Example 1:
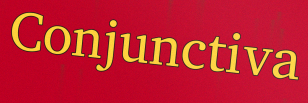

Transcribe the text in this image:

Conjunctiva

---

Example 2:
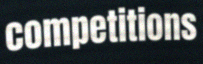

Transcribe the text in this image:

competitions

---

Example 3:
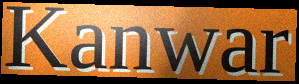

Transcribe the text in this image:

Kanwar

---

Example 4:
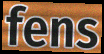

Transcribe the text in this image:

fens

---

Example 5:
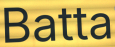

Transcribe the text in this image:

Batta